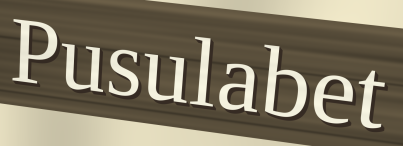
Pusulabet